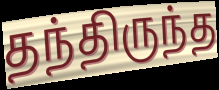
தந்திருந்த